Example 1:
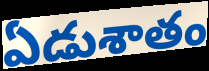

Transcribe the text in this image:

ఏడుశాతం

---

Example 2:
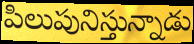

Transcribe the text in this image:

పిలుపునిస్తున్నాడు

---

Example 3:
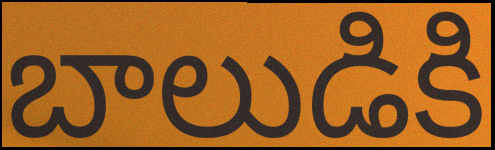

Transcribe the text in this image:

బాలుడికి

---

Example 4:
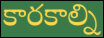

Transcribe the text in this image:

కారకాల్ని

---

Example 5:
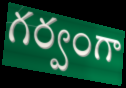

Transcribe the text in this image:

గర్వంగా